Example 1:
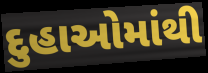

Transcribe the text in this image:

દુહાઓમાંથી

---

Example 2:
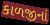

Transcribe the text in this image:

કાળજીનાં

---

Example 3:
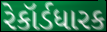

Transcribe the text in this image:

રેકૉર્ડધારક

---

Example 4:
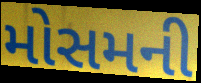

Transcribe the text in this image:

મોસમની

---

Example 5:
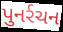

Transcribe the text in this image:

પુનર્રચન